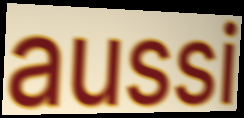
aussi